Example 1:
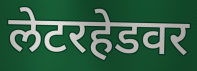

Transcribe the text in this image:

लेटरहेडवर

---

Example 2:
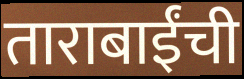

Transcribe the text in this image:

ताराबाईंची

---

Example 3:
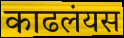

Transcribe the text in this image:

काढलंयस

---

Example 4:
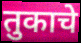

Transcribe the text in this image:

तुकाचे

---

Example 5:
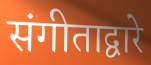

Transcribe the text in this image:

संगीताद्वारे